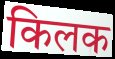
किलक